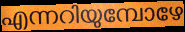
എന്നറിയുമ്പോഴേ